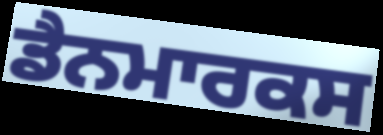
ਡੈਨਮਾਰਕਸ